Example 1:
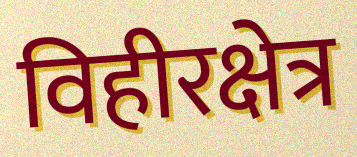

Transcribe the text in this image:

विहीरक्षेत्र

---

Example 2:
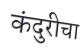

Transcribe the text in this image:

कंदुरीचा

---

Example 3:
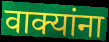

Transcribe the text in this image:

वाक्यांना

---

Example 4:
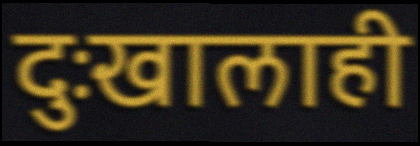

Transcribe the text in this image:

दुःखालाही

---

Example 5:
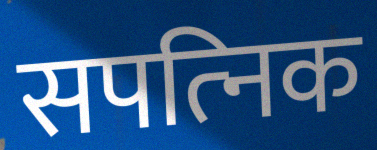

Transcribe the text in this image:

सपत्‍निक